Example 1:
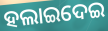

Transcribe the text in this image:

ହଲାଇଦେଇ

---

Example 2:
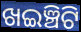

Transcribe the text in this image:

ଖଇଞ୍ଚିଟି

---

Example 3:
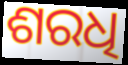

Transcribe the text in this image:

ଶରଧି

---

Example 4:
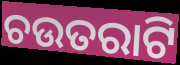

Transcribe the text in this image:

ଚଉତରାଟି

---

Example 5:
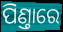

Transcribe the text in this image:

ପିଣ୍ତାରେ